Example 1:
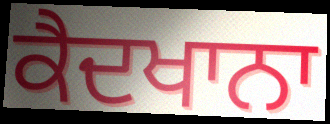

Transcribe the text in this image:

ਕੈਦਖਾਨਾ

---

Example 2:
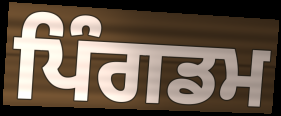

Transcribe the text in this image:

ਪਿੰਗਡਮ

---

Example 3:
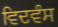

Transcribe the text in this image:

ਵਿਦਵੰਸ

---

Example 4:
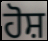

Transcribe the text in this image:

ਹੋਸ਼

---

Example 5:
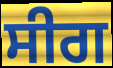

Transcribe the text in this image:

ਸੀਗ